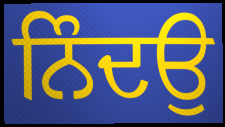
ਨਿੰਦਉ